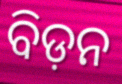
ବିଡ଼ନ